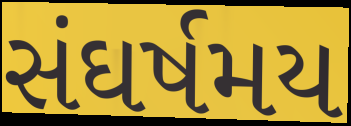
સંઘર્ષમય